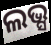
ଲଭ୍ସ